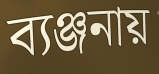
ব্যঞ্জনায়